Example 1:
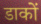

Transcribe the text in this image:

डाकों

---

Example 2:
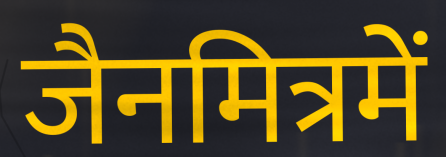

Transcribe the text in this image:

जैनमित्रमें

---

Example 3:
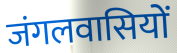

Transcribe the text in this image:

जंगलवासियों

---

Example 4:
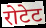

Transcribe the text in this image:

रोटेट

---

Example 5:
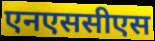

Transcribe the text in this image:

एनएससीएस